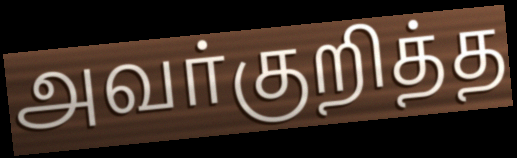
அவர்குறித்த